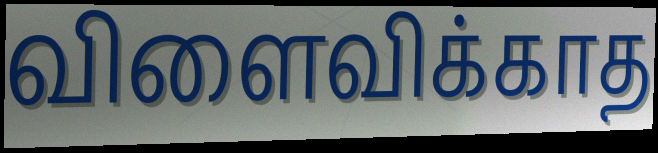
விளைவிக்காத